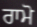
ਰਾਮੋ